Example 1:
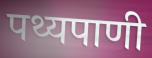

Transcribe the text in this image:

पथ्यपाणी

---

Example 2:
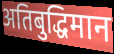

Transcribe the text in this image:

अतिबुद्धिमान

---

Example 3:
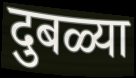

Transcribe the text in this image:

दुबळ्या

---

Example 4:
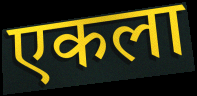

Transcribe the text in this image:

एकला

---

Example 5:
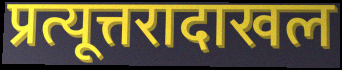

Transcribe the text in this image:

प्रत्यूत्तरादाखल